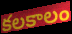
కలకాలం